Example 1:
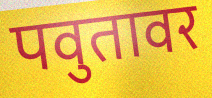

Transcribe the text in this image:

पवुतावर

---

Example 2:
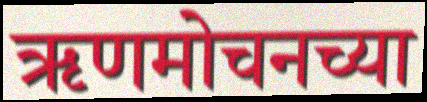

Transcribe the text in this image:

ऋणमोचनच्या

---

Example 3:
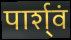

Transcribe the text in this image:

पार्श्वं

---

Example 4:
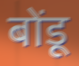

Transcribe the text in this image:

बोंडू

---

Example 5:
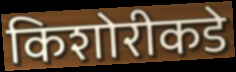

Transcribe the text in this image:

किशोरीकडे